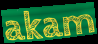
akam